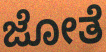
ಜೋತೆ